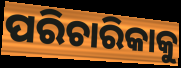
ପରିଚାରିକାକୁ